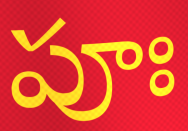
పూః